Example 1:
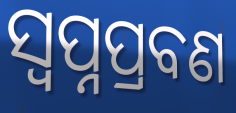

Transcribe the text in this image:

ସ୍ଵପ୍ନପ୍ରବଣ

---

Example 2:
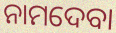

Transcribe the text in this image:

ନାମଦେବା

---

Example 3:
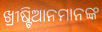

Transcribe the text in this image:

ଖ୍ରୀଷ୍ଟିଆନମାନଙ୍କ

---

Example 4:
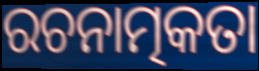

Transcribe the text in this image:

ରଚନାତ୍ମକତା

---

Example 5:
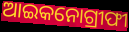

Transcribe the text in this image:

ଆଇକନୋଗ୍ରୀଫୀ